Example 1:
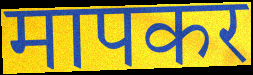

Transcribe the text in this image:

मापकर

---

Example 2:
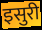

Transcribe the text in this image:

इसुरी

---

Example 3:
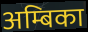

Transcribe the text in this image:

अम्बिका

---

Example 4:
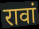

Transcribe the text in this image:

रावां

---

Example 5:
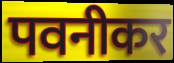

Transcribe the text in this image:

पवनीकर